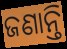
ଜଣାନ୍ତି